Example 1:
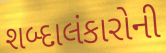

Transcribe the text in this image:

શબ્દાલંકારોની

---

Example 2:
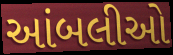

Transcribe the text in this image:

આંબલીઓ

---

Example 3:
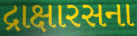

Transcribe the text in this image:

દ્રાક્ષારસના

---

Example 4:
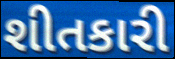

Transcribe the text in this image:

શીતકારી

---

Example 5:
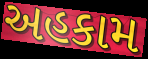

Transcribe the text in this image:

અહકામ